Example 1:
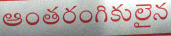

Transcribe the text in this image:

ఆంతరంగికులైన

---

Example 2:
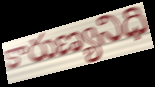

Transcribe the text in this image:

కారుణ్యనిధి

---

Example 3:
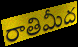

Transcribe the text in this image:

రాతిమీద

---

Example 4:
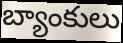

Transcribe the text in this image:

బ్యాంకులు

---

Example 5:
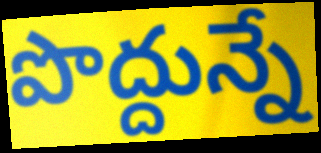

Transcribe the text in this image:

పొద్దున్నే